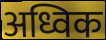
अध्विक